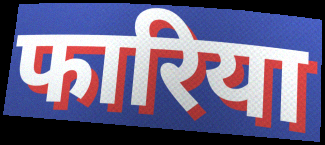
फारिया